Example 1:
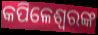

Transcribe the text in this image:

କପିଳେଶ୍ବରଙ୍କ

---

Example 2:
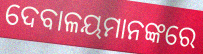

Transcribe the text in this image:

ଦେବାଳୟମାନଙ୍କରେ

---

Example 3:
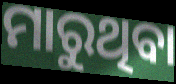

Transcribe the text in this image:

ମାରୁଥିବା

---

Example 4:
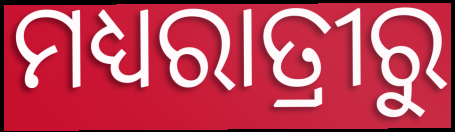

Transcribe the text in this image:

ମଧ୍ୟରାତ୍ରୀରୁ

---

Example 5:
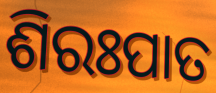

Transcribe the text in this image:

ଶିରଃପାତ